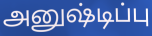
அனுஷ்டிப்பு